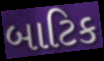
બાટિક